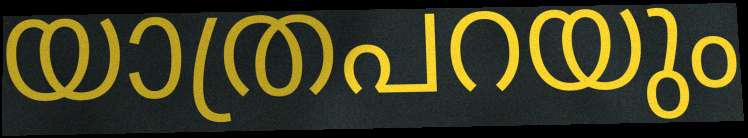
യാത്രപറയും